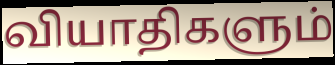
வியாதிகளும்